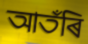
আতঁৰি